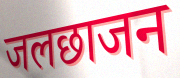
जलछाजन